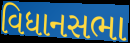
વિધાનસભા